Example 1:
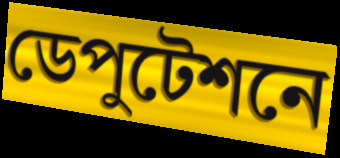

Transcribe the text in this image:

ডেপুটেশনে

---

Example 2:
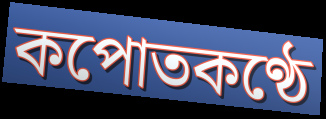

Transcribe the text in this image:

কপোতকণ্ঠে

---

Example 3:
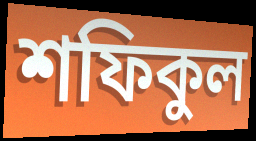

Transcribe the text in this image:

শফিকুল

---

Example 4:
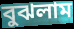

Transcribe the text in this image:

বুঝলাম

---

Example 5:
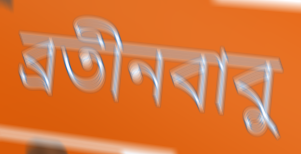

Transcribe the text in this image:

ব্রতীনবাবু